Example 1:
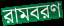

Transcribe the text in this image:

রামবরণ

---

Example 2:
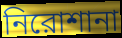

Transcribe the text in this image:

নিরোশানা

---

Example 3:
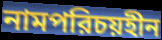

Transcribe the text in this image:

নামপরিচয়হীন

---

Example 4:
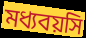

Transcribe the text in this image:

মধ্যবয়সি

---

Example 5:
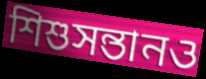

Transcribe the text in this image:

শিশুসন্তানও